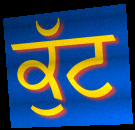
ਕੁੱਟ